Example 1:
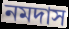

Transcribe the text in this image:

নমদাস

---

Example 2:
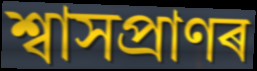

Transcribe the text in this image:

শ্বাসপ্ৰাণৰ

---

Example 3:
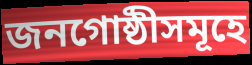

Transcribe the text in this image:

জনগোষ্ঠীসমূহে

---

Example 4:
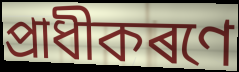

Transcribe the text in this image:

প্ৰাধীকৰণে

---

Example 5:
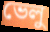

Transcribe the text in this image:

ভেলু